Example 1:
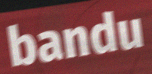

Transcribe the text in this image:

bandu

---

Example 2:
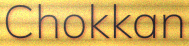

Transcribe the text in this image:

Chokkan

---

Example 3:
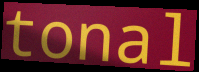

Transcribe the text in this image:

tonal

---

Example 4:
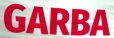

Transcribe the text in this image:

GARBA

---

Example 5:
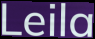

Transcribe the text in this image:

Leila